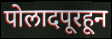
पोलादपूरहून